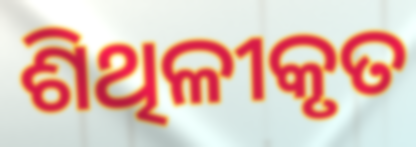
ଶିଥିଳୀକୃତ